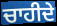
ਚਾਹੀਦੇ